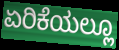
ಏರಿಕೆಯಲ್ಲೂ